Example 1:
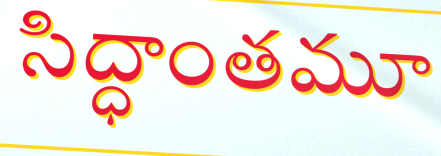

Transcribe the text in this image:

సిద్ధాంతమూ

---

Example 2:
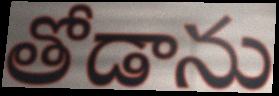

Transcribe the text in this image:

తోడాను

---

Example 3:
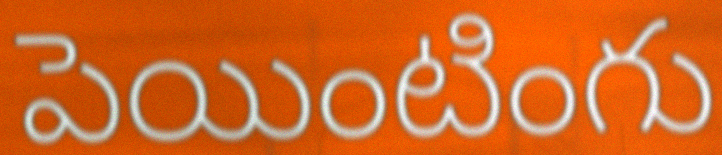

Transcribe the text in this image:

పెయింటింగు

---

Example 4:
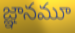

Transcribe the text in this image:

జ్ఞానమూ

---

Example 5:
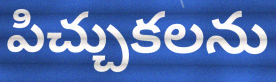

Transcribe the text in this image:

పిచ్చుకలను